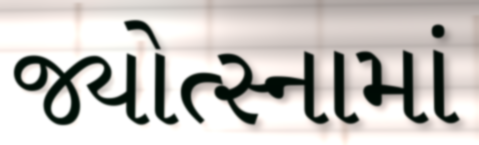
જ્યોત્સ્નામાં